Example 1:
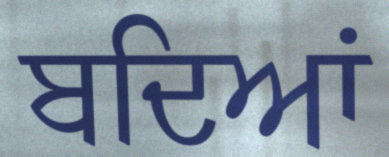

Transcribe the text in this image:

ਬਦਿਆਂ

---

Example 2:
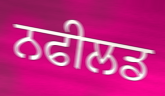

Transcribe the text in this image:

ਨਫੀਲਡ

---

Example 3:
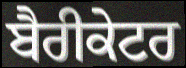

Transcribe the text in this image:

ਬੈਰੀਕੇਟਰ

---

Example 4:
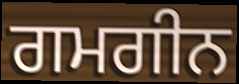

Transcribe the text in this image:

ਗਮਗੀਨ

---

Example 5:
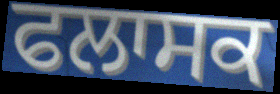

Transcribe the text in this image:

ਫਲਾਸਕ